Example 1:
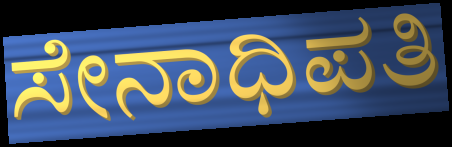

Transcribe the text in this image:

ಸೇನಾಧಿಪತಿ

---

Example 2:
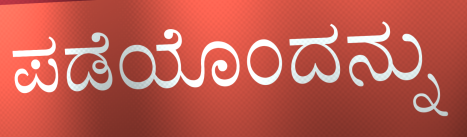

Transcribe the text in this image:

ಪಡೆಯೊಂದನ್ನು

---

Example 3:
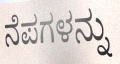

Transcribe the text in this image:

ನೆಪಗಳನ್ನು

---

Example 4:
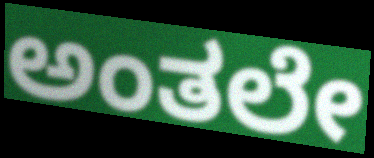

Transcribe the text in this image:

ಅಂತಲೇ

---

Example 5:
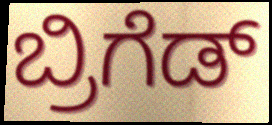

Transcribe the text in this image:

ಬ್ರಿಗೆಡ್